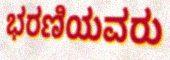
ಭರಣಿಯವರು